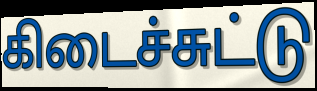
கிடைச்சுட்டு